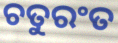
ଚତୁରଂତ